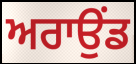
ਅਰਾਉਂਡ